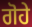
ਗੋਹੇ